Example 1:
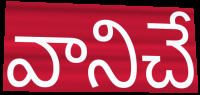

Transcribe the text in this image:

వానిచే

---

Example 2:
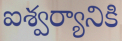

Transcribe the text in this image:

ఐశ్వర్యానికి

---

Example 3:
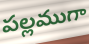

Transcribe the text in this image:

పల్లముగా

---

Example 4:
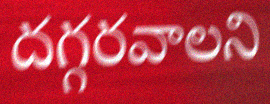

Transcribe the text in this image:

దగ్గరవాలని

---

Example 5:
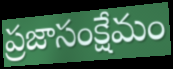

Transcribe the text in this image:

ప్రజాసంక్షేమం